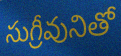
సుగ్రీవునితో